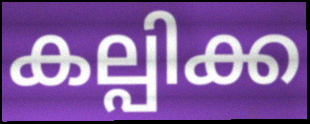
കല്പിക്ക